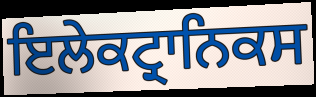
ਇਲੇਕਟ੍ਰਾਨਿਕਸ